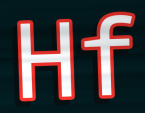
Hf